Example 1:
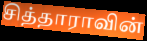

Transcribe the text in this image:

சித்தாராவின்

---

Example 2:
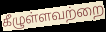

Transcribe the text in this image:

கீழுள்ளவற்றை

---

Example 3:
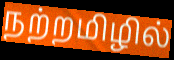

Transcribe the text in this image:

நற்றமிழில்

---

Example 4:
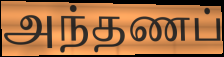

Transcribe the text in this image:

அந்தணப்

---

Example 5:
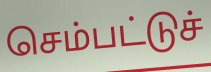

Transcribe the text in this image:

செம்பட்டுச்